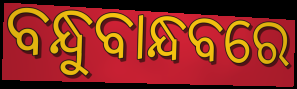
ବନ୍ଧୁବାନ୍ଧବରେ